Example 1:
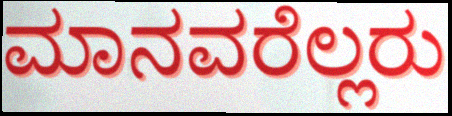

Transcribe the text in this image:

ಮಾನವರೆಲ್ಲರು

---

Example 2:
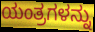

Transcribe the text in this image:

ಯಂತ್ರಗಳನ್ನು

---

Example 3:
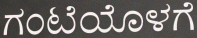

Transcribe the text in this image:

ಗಂಟೆಯೊಳಗೆ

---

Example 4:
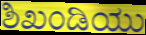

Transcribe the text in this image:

ಶಿಖಂಡಿಯು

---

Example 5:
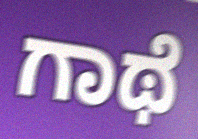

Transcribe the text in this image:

ಗಾಥೆ